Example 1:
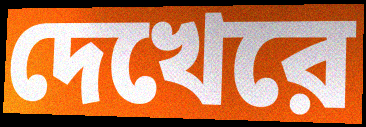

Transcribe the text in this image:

দেখেরে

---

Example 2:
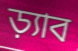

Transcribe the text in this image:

ড়্যাব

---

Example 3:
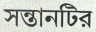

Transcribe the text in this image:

সন্তানটির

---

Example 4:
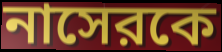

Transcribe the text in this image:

নাসেরকে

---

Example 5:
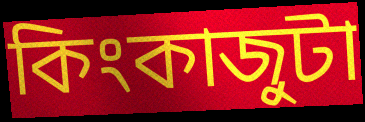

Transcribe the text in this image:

কিংকাজুটা